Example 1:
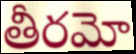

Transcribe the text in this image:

తీరమో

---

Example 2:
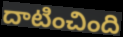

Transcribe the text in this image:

దాటించింది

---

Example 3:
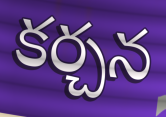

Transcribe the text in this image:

కర్చన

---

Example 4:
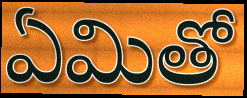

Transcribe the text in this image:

ఏమితో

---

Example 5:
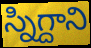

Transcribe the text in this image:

స్నిగ్దాని